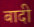
बादी